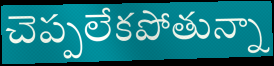
చెప్పలేకపోతున్నా